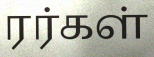
ரர்கள்